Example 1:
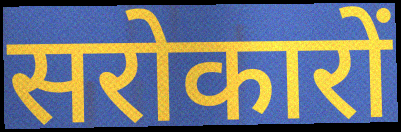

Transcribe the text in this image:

सरोकारों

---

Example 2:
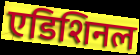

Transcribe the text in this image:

एडिशिनल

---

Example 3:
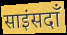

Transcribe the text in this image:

साइंसदाँ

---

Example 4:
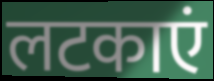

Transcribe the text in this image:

लटकाएं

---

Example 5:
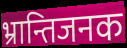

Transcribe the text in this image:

भ्रान्तिजनक